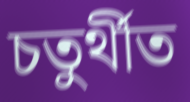
চতুৰ্থীত